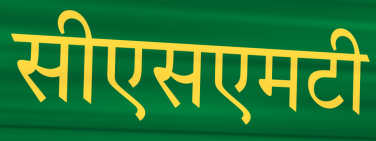
सीएसएमटी